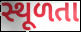
સ્થૂળતા